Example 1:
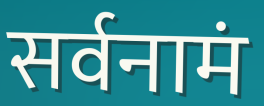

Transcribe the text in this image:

सर्वनामं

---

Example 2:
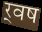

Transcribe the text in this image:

र्वष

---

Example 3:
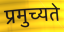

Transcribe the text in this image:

प्रमुच्यते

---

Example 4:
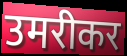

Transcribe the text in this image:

उमरीकर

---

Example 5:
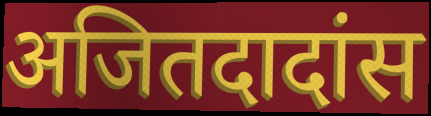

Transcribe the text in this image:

अजितदादांस